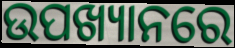
ଉପଖ୍ୟାନରେ